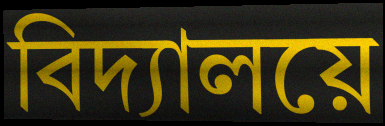
বিদ্যালয়ে